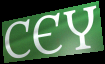
CEY